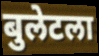
बुलेटला